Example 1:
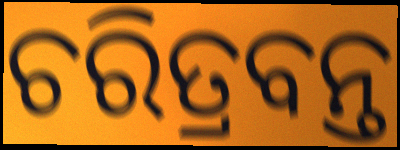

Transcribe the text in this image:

ଚରିତ୍ରବନ୍ତ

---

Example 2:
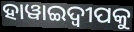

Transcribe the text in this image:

ହାୱାଇଦ୍ଵୀପକୁ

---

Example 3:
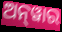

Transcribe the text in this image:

ଅନ୍‌ୱାର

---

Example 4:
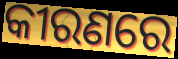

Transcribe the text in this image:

କୀରଣରେ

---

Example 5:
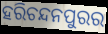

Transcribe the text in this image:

ହରିଚନ୍ଦନପୁରର